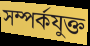
সম্পর্কযুক্ত